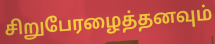
சிறுபேரழைத்தனவும்